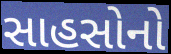
સાહસોનો